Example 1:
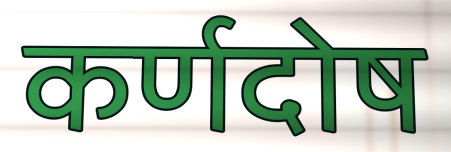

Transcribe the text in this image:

कर्णदोष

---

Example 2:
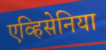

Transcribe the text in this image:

एव्हिसेनिया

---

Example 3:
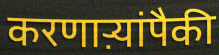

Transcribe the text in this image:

करणाऱ्‍यांपैकी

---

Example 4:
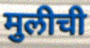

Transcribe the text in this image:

मुलीची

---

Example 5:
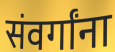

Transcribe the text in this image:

संवर्गांना